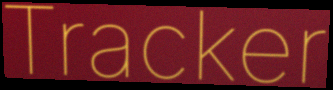
Tracker